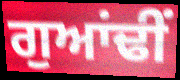
ਗੁਆਂਢੀਂ